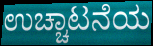
ಉಚ್ಚಾಟನೆಯ